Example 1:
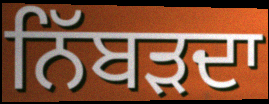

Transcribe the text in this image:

ਨਿੱਬੜਦਾ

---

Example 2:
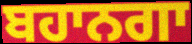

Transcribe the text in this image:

ਬਹਾਨਗਾ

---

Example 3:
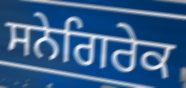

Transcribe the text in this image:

ਸਨੇਗਿਰੇਕ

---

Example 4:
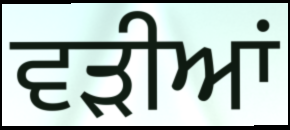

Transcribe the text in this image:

ਵੜੀਆਂ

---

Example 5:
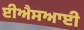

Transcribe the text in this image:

ਈਐਸਆਈ